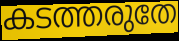
കടത്തരുതേ